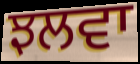
ਝਲਵਾ